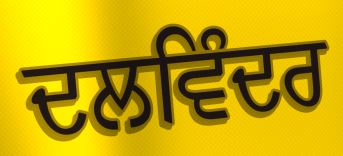
ਦਲਵਿੰਦਰ